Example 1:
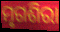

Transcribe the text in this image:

ମୃଗଶିରା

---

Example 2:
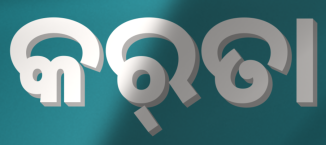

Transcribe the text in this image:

କର୍‌ତା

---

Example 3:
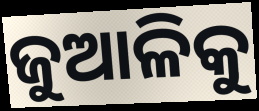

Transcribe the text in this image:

ଜୁଆଳିକୁ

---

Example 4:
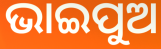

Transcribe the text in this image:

ଭାଇପୁଅ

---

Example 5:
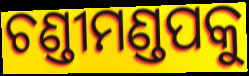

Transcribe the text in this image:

ଚଣ୍ଡୀମଣ୍ଡପକୁ